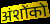
अंशोंको